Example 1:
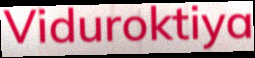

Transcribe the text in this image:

Viduroktiya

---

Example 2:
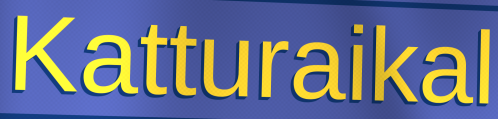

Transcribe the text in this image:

Katturaikal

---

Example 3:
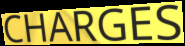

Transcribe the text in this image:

CHARGES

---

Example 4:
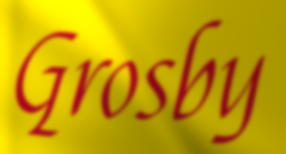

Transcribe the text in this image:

Grosby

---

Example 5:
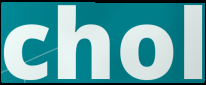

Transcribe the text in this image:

chol